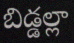
బిడ్డల్లా